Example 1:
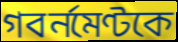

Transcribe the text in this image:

গবর্নমেণ্টকে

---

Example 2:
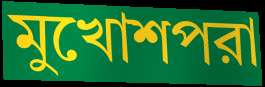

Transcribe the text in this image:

মুখোশপরা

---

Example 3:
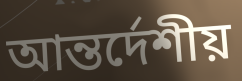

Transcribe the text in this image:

আন্তর্দেশীয়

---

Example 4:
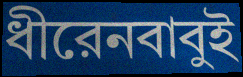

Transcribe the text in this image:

ধীরেনবাবুই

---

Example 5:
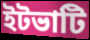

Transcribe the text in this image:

ইটভাটি